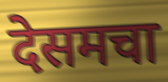
देसमचा